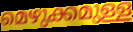
മെഴുക്കമുള്ള